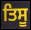
ਤਿਸੂ